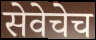
सेवेचेच